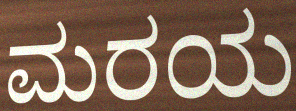
ಮರಯ